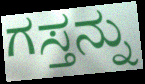
ಗಸ್ತನ್ನು